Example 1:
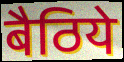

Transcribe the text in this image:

बैठिये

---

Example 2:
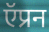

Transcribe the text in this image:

ऍप्रन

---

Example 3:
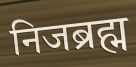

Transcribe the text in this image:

निजब्रह्म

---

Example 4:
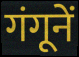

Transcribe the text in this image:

गंगूनें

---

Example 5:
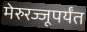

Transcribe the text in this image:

मेरुरज्जूपर्यंत